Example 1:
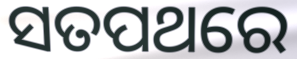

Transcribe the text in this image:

ସତପଥରେ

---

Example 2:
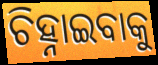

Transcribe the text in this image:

ଚିହ୍ନାଇବାକୁ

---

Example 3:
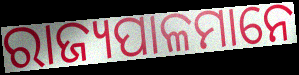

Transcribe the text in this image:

ରାଜ୍ୟପାଳମାନେ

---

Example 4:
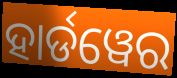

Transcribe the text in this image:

ହାର୍ଡୱେର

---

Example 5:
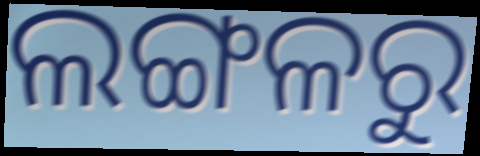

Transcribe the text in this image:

ଲଙ୍ଗଳରୁ